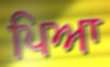
ਪਿਆ